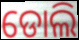
ଡୋଲି